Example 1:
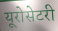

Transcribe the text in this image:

यूरोसेटरी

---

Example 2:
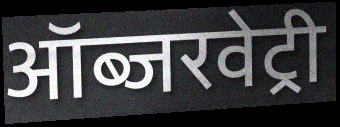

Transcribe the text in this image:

ऑब्जरवेट्री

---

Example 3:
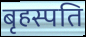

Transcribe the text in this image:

बृहस्‍पति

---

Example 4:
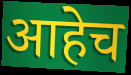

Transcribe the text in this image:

आहेच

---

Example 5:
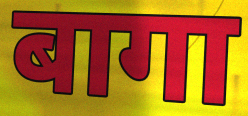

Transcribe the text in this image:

बागा